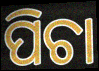
ପିଚା